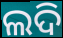
ଲଦି